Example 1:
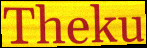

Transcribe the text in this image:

Theku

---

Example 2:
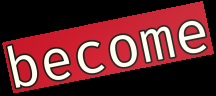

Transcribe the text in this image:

become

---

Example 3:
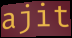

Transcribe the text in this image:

ajit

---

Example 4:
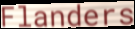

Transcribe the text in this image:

Flanders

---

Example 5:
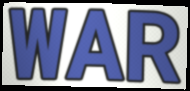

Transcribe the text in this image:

WAR